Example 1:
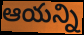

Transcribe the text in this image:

ఆయన్ని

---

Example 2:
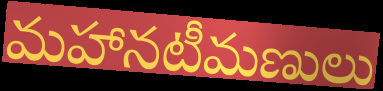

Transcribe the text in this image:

మహానటీమణులు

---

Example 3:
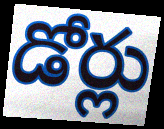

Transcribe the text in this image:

డోర్లు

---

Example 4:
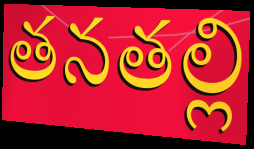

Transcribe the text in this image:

తనతల్లి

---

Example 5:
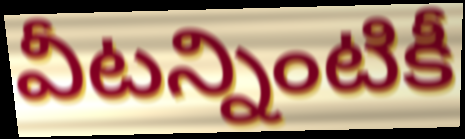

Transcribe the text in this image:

వీటన్నింటికీ